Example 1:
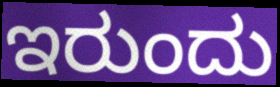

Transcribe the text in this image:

ಇರುಂದು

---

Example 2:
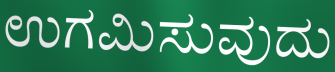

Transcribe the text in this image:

ಉಗಮಿಸುವುದು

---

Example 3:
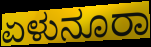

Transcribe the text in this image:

ಏಳುನೂರಾ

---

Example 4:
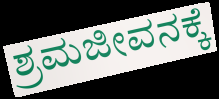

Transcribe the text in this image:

ಶ್ರಮಜೀವನಕ್ಕೆ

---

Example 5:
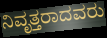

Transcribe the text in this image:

ನಿವೃತ್ತರಾದವರು